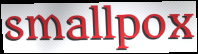
smallpox